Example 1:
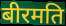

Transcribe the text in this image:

बीरमति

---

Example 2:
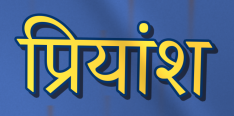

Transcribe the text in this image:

प्रियांश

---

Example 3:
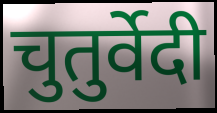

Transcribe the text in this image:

चुतुर्वेदी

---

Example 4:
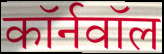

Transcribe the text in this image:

कॉर्नवॉल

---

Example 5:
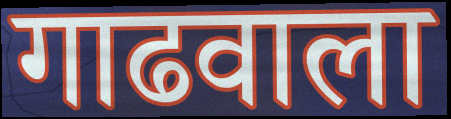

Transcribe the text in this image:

गाढवाला